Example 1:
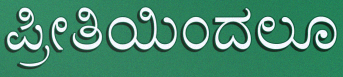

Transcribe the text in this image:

ಪ್ರೀತಿಯಿಂದಲೂ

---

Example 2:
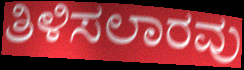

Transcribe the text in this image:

ತಿಳಿಸಲಾರವು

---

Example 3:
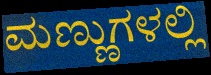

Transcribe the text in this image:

ಮಣ್ಣುಗಳಲ್ಲಿ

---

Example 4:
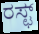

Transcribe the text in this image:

ರಸ್ಟ್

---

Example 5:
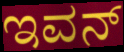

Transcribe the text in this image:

ಇವನ್